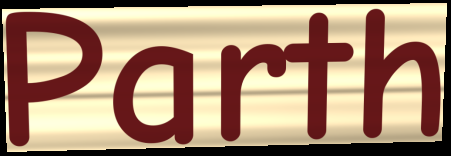
Parth